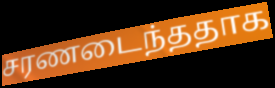
சரணடைந்ததாக